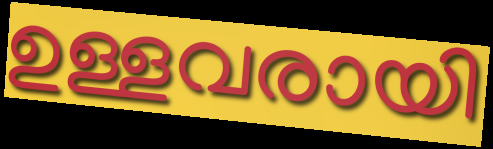
ഉള്ളവരായി